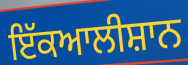
ਇੱਕਆਲੀਸ਼ਾਨ